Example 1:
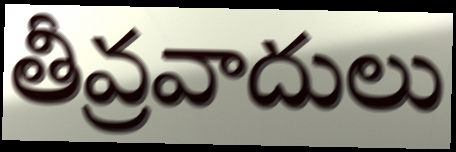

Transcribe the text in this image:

తీవ్రవాదులు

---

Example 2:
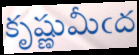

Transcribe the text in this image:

కృష్ణుమీఁద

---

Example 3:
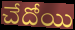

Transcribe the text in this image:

చేదోయి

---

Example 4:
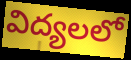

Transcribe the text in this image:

విద్యలలో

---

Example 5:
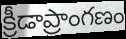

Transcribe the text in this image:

క్రీడాప్రాంగణం